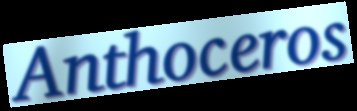
Anthoceros